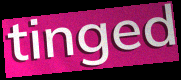
tinged